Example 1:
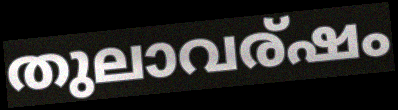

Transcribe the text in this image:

തുലാവര്ഷം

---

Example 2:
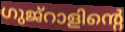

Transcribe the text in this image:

ഗുജ്റാളിന്റെ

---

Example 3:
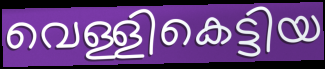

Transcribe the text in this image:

വെള്ളികെട്ടിയ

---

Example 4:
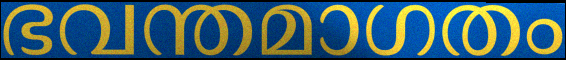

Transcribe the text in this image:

ഭവന്തമാഗതം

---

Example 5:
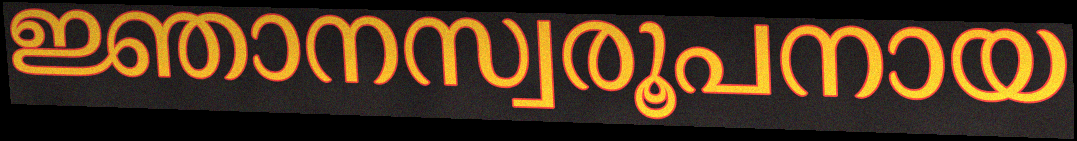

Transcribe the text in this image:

ജ്ഞാനസ്വരൂപനായ